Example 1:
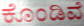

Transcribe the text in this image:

ಕೊಂಡಿವೆ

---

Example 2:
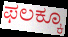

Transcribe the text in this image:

ಫಲಕ್ಕೂ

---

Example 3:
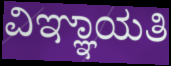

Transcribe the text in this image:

ವಿಞ್ಞಾಯತಿ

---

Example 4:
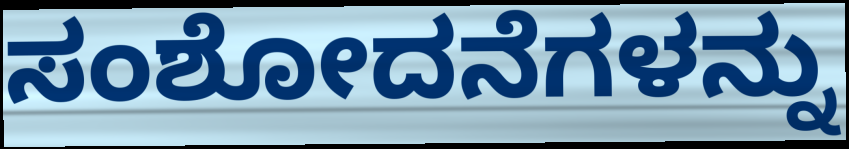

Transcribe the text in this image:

ಸಂಶೋದನೆಗಳನ್ನು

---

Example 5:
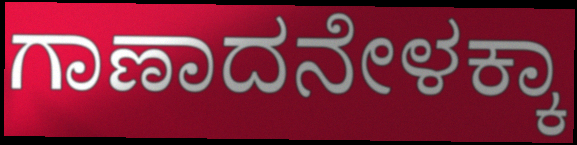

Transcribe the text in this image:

ಗಾಣಾದನೇಳಕ್ಕಾ